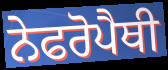
ਨੇਫਰੋਪੈਥੀ